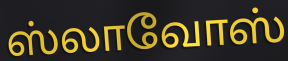
ஸ்லாவோஸ்